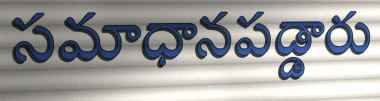
సమాధానపడ్డారు